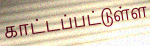
காட்டப்பட்டுள்ள